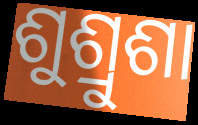
ଶୁଶ୍ରୁଶା